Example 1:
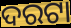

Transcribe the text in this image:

ଦରଟା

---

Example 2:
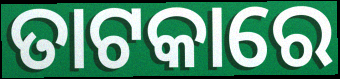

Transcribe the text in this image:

ତାଟକାରେ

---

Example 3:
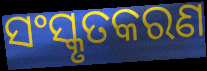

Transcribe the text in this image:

ସଂସ୍କୃତକରଣ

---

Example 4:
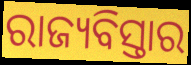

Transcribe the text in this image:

ରାଜ୍ୟବିସ୍ତାର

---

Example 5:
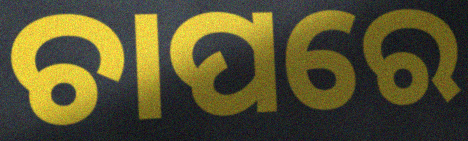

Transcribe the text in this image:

ଚାପରେ